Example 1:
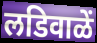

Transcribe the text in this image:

लडिवाळें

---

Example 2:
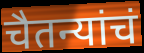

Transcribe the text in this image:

चैतन्यांचं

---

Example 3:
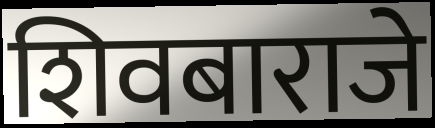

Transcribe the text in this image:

शिवबाराजे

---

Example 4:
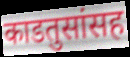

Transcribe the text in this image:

काडतुसांसह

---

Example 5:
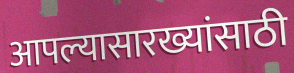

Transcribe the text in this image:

आपल्यासारख्यांसाठी